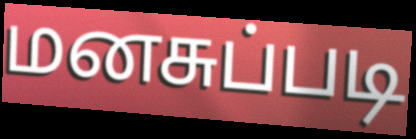
மனசுப்படி